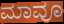
ಮಾವೂ